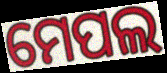
ମେପଲ